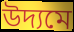
উদ্যমে